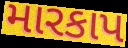
મારકાપ